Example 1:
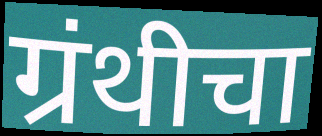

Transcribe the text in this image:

ग्रंथीचा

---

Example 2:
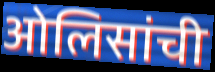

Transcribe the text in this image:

ओलिसांची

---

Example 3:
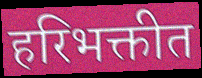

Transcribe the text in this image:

हरिभक्तीत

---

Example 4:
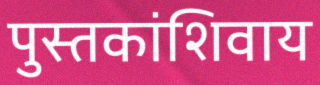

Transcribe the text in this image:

पुस्तकांशिवाय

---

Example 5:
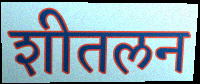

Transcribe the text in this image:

शीतलन